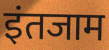
इंतजाम